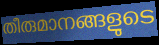
തീരുമാനങ്ങളുടെ